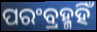
ପରଂବ୍ରହ୍ମହିଁ